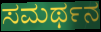
ಸಮರ್ಥನ